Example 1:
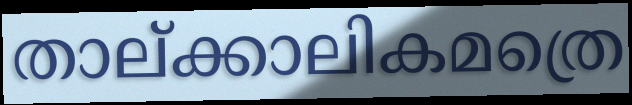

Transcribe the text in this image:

താല്ക്കാലികമത്രെ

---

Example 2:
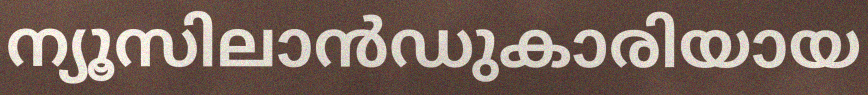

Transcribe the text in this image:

ന്യൂസിലാൻഡുകാരിയായ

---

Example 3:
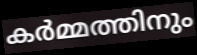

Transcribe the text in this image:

കർമ്മത്തിനും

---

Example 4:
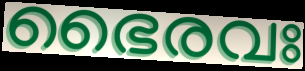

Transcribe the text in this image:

ഭൈരവഃ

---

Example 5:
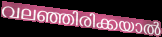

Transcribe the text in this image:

വലഞ്ഞിരിക്കയാൽ